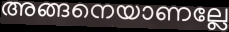
അങ്ങനെയാണല്ലേ